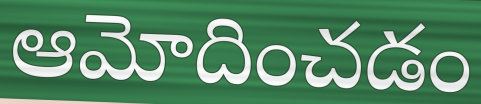
ఆమోదించడం